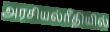
அரசியல்ரீதியில்